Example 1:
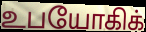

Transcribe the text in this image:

உபயோகிக்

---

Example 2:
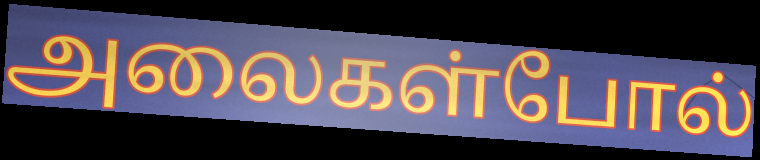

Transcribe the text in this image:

அலைகள்போல்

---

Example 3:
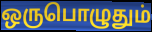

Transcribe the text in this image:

ஒருபொழுதும்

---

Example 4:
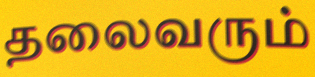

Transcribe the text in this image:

தலைவரும்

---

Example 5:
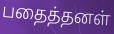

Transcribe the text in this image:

பதைத்தனள்